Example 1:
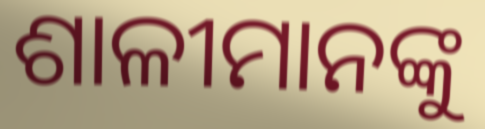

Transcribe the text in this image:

ଶାଳୀମାନଙ୍କୁ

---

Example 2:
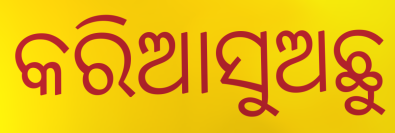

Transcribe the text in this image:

କରିଆସୁଅଛୁ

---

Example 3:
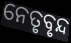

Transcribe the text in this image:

ନେତୃବୃନ୍ଦ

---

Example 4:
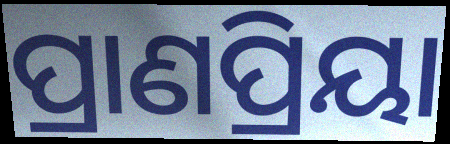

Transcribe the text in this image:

ପ୍ରାଣପ୍ରିୟା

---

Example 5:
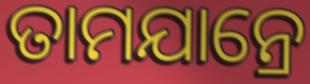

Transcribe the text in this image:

ତାମଯାନ୍ରେ